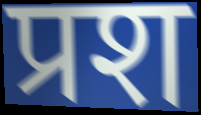
प्रश